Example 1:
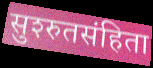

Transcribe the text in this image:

सुश्रुतसंहिता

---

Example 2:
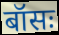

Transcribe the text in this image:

बॉसः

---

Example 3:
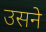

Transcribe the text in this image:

उसने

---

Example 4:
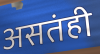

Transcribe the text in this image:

असतंही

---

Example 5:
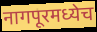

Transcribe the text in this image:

नागपूरमध्येच